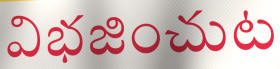
విభజించుట